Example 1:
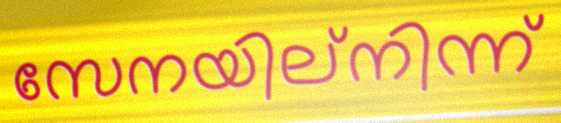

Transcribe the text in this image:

സേനയില്നിന്ന്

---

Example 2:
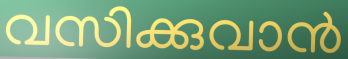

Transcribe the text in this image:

വസിക്കുവാൻ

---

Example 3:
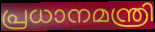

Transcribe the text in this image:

പ്രധാനമന്ത്രി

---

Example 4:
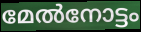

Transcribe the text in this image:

മേൽനോട്ടം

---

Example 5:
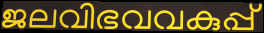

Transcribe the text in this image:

ജലവിഭവവകുപ്പ്